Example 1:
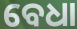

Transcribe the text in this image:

ବେଧା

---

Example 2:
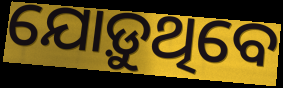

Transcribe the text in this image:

ଯୋଡ଼ୁଥିବେ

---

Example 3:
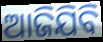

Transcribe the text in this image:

ଆଜିଯିବି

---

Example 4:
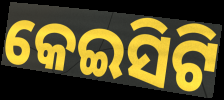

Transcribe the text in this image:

କେଇସିଟି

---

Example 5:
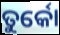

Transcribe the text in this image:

ତୁର୍କୋ